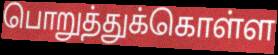
பொறுத்துக்கொள்ள